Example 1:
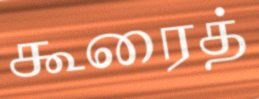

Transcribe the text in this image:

கூரைத்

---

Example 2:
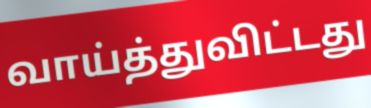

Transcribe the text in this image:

வாய்த்துவிட்டது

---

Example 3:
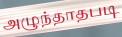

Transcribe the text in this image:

அழுந்தாதபடி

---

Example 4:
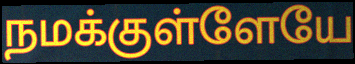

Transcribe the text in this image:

நமக்குள்ளேயே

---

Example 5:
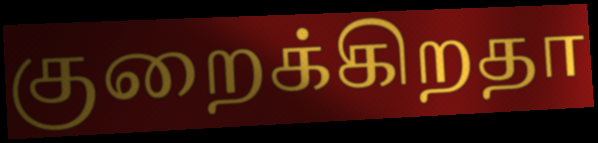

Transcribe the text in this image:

குறைக்கிறதா